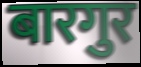
बारगुर